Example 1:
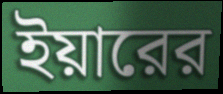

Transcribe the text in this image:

ইয়ারের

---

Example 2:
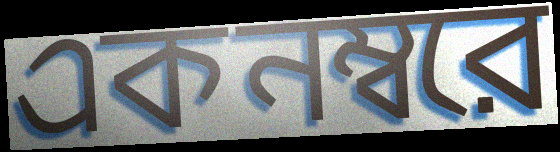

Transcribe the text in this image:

একনম্বরে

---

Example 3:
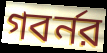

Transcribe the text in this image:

গবর্নর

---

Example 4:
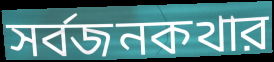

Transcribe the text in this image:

সর্বজনকথার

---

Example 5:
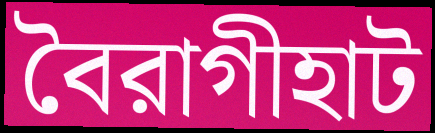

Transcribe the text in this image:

বৈরাগীহাট